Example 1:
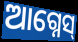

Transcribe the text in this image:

ଆଗ୍ନେସ୍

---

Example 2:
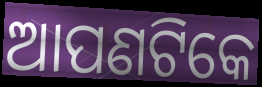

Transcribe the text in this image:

ଆପଣଟିକେ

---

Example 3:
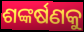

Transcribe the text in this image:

ଶଙ୍କର୍ଷଣକୁ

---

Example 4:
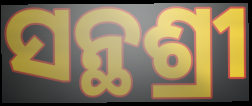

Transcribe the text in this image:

ସନ୍ଥଶ୍ରୀ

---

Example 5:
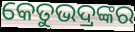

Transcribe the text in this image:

କେତୁଭଦ୍ରଙ୍କର